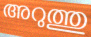
അറുത്തു